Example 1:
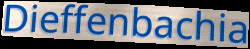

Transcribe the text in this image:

Dieffenbachia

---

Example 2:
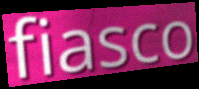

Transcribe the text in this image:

fiasco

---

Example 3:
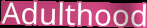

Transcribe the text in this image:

Adulthood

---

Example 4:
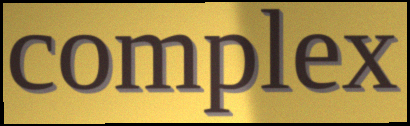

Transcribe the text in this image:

complex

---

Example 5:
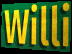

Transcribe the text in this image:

Willi